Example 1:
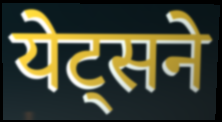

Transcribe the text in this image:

येट्सने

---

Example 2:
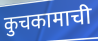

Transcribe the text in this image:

कुचकामाची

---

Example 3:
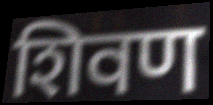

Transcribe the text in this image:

शिवण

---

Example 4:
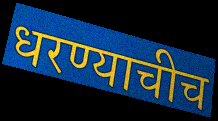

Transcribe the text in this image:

धरण्याचीच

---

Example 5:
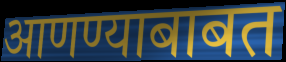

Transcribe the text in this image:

आणण्याबाबत